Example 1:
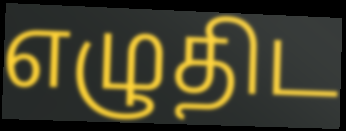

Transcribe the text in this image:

எழுதிட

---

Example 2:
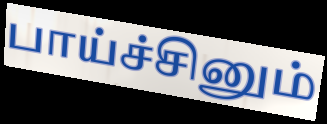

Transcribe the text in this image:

பாய்ச்சினும்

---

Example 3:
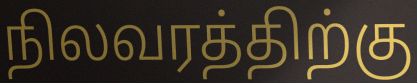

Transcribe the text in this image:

நிலவரத்திற்கு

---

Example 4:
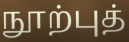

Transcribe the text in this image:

நூற்புத்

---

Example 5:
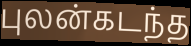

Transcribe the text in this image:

புலன்கடந்த